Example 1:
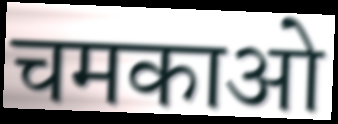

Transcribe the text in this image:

चमकाओ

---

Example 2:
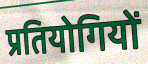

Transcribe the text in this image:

प्रतियोगियों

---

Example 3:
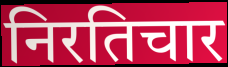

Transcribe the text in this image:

निरतिचार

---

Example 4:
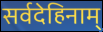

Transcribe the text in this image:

सर्वदेहिनाम्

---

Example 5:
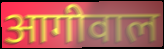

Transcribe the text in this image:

आगीवाल